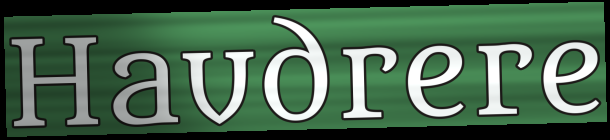
Haudrere